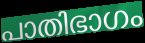
പാതിഭാഗം